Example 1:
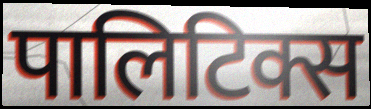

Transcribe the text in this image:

पालिटिक्स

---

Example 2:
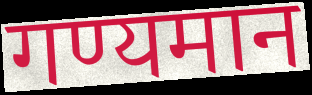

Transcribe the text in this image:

गण्यमान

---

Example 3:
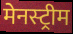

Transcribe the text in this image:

मेनस्‍ट्रीम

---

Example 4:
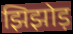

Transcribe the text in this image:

झिझोड़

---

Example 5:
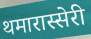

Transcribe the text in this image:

थमारास्सेरी